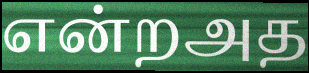
என்றஅத